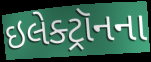
ઇલેક્ટ્રૉનના